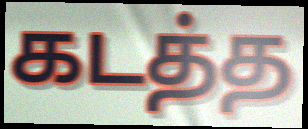
கடத்த